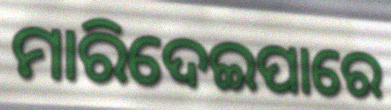
ମାରିଦେଇପାରେ